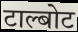
टाल्बोट